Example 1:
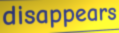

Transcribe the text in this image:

disappears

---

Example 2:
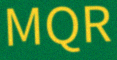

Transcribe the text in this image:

MQR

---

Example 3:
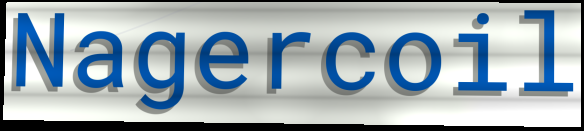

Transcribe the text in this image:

Nagercoil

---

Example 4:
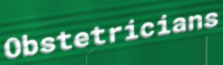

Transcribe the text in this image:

Obstetricians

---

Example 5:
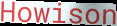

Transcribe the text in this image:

Howison